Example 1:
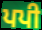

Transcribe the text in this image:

ਪਪੀ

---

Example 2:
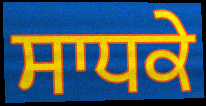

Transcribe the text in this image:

ਸਾਧਕੇ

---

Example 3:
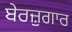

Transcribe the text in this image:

ਬੇਰਜ਼ੁਗਾਰ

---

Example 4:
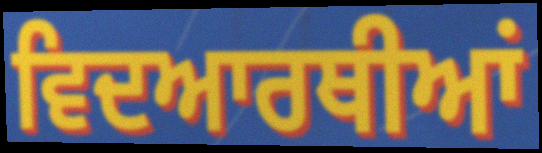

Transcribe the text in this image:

ਵਿਦਆਰਥੀਆਂ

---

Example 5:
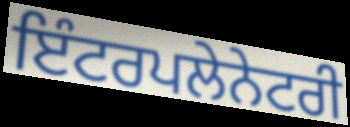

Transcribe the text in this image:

ਇੰਟਰਪਲੇਨੇਟਰੀ